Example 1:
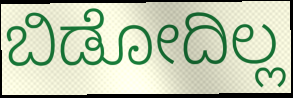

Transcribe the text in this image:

ಬಿಡೋದಿಲ್ಲ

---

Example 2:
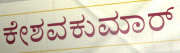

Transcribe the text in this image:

ಕೇಶವಕುಮಾರ್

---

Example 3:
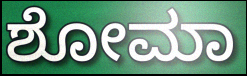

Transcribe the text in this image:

ಶೋಮಾ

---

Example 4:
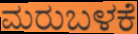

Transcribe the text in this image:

ಮರುಬಳಕೆ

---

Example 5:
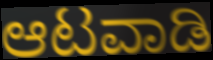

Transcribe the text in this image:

ಆಟವಾಡಿ